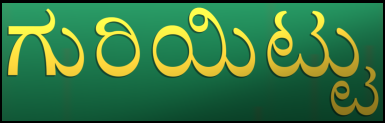
ಗುರಿಯಿಟ್ಟು